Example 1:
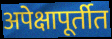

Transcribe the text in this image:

अपेक्षापूर्तीत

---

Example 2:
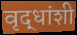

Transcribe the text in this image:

वृद्धांशी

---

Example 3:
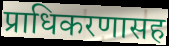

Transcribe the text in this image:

प्राधिकरणासह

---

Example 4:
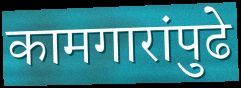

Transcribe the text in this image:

कामगारांपुढे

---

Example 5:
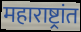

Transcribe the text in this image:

महाराष्ट्रांत